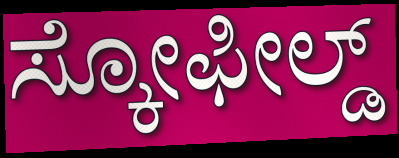
ಸ್ಕೋಫೀಲ್ಡ್